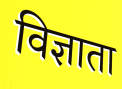
विज्ञाता